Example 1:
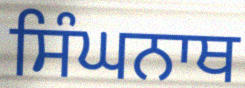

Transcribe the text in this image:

ਸਿੰਘਨਾਥ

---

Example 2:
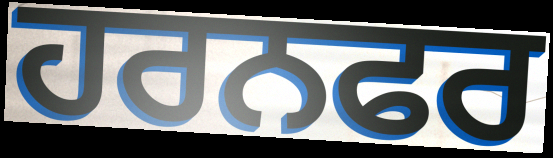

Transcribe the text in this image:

ਹਰਨਫਰ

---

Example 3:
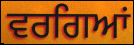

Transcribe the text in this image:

ਵਰਗਿਆਂ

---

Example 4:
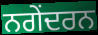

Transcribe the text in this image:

ਨਗੇਂਦਰਨ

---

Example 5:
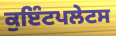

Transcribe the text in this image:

ਕੁਇੰਟਪਲੇਟਸ